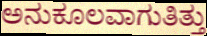
ಅನುಕೂಲವಾಗುತಿತ್ತು